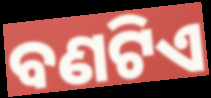
ବଣଟିଏ